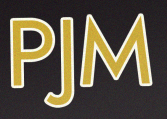
PJM